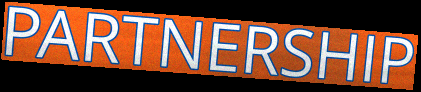
PARTNERSHIP